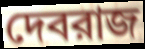
দেবরাজ